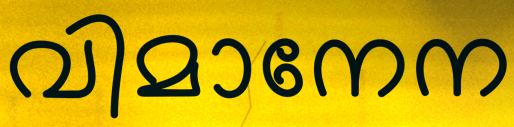
വിമാനേന